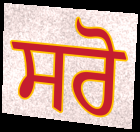
ਸਰੋ